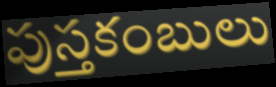
పుస్తకంబులు